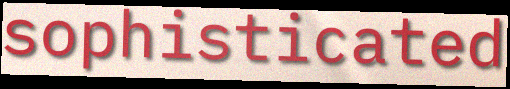
sophisticated